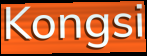
Kongsi